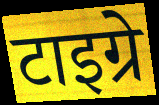
टाइग्रे